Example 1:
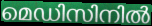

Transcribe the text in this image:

മെഡിസിനിൽ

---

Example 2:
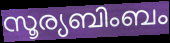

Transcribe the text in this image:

സൂര്യബിംബം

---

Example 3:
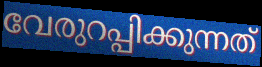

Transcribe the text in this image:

വേരുറപ്പിക്കുന്നത്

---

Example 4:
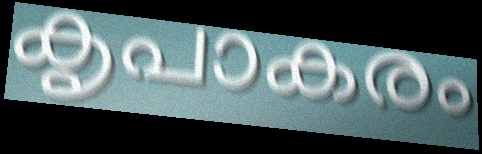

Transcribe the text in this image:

കൃപാകരം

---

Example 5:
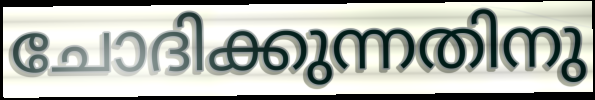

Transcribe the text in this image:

ചോദിക്കുന്നതിനു